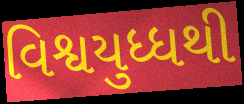
વિશ્વયુધ્ધથી